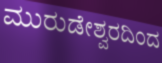
ಮುರುಡೇಶ್ವರದಿಂದ